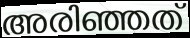
അരിഞ്ഞത്